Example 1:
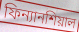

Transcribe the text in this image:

ফিন্যানশিয়াল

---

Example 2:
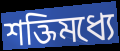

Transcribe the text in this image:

শক্তিমধ্যে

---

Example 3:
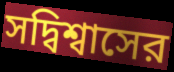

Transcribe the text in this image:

সদ্বিশ্বাসের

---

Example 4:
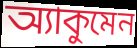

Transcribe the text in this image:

অ্যাকুমেন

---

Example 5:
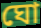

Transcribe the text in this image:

ঘো